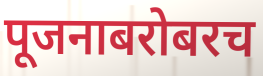
पूजनाबरोबरच